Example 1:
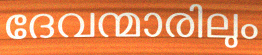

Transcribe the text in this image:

ദേവന്മാരിലും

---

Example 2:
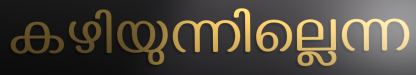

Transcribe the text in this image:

കഴിയുന്നില്ലെന്ന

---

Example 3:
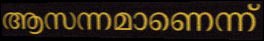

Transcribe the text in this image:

ആസന്നമാണെന്ന്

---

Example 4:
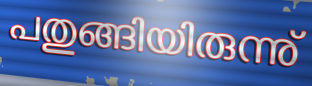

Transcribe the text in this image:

പതുങ്ങിയിരുന്നു്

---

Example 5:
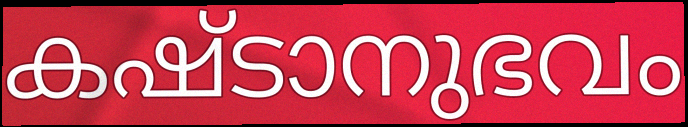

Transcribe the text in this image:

കഷ്ടാനുഭവം